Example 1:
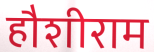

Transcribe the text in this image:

हौशीराम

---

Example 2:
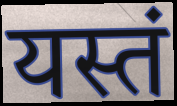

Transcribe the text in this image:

यस्तं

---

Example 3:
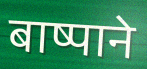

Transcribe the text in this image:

बाष्पाने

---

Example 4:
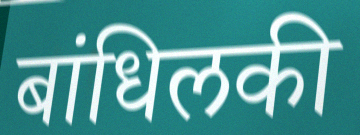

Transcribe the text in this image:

बांधिलकी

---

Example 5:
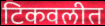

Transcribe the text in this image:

टिकवलीत